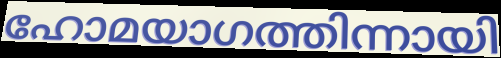
ഹോമയാഗത്തിന്നായി